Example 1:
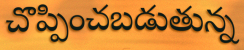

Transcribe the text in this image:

చొప్పించబడుతున్న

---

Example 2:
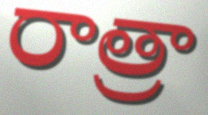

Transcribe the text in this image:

రాత్రా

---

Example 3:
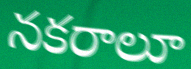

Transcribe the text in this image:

నకరాలూ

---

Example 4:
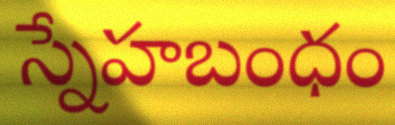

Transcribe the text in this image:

స్నేహబంధం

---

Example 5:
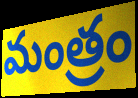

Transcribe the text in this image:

మంత్రం